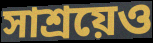
সাশ্রয়েও